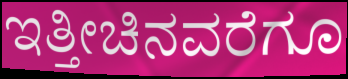
ಇತ್ತೀಚಿನವರೆಗೂ